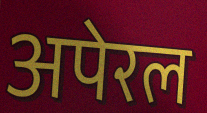
अपेरल